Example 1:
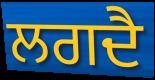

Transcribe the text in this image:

ਲਗਦੈ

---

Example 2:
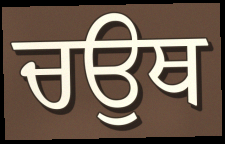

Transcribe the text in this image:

ਚਉਥ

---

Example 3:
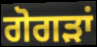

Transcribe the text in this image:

ਗੋਗੜਾਂ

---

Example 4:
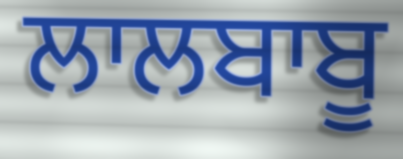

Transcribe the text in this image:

ਲਾਲਬਾਬੂ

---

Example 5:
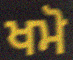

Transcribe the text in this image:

ਖਮੋ